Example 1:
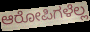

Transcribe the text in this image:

ಆರೋಪಿಗಳೆಲ್ಲ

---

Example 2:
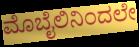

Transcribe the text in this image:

ಮೊಬೈಲಿನಿಂದಲೇ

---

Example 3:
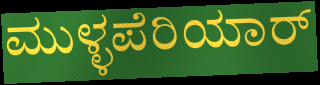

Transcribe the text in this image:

ಮುಳ್ಳಪೆರಿಯಾರ್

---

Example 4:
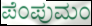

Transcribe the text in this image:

ಪೆಂಪುಮಂ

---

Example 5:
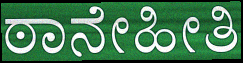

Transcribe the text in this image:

ಠಾನೇಹೀತಿ